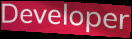
Developer